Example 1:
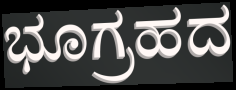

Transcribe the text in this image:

ಭೂಗ್ರಹದ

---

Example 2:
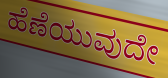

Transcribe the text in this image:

ಹೆಣೆಯುವುದೇ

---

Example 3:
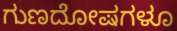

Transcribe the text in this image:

ಗುಣದೋಷಗಳೂ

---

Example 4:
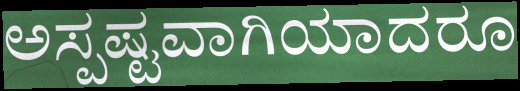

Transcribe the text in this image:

ಅಸ್ಪಷ್ಟವಾಗಿಯಾದರೂ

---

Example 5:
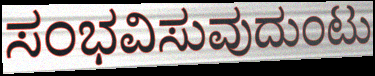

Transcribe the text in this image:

ಸಂಭವಿಸುವುದುಂಟು